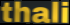
thali